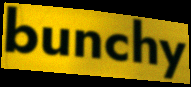
bunchy